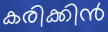
കരിക്കിൻ